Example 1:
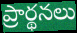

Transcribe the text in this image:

ప్రార్థనలు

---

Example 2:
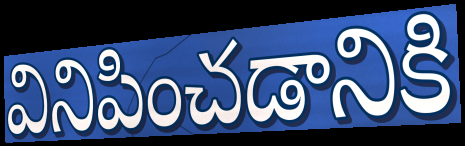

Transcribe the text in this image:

వినిపించడానికి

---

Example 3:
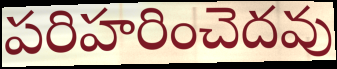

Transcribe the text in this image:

పరిహరించెదవు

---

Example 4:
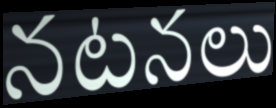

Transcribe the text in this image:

నటనలు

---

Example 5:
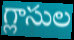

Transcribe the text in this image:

గ్లాసుల